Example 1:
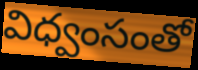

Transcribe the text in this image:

విధ్వంసంతో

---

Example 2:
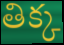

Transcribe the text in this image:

తిక్క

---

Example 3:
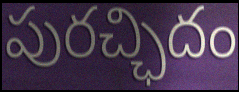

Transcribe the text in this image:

పురచ్ఛిదం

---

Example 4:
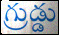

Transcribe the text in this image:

గ్రుడ్డు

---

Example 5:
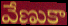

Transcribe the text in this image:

వేణుకా